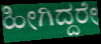
ಹೀಗಿದ್ದರೇ